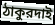
ঠাকুরদাই